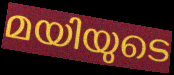
മയിയുടെ